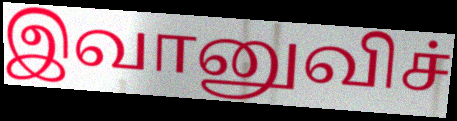
இவானுவிச்